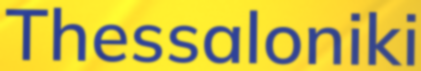
Thessaloniki